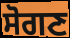
ਸੋਗਣ